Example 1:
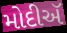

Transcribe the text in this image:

મોદીઍ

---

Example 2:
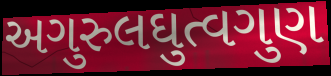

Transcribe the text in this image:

અગુરુલઘુત્વગુણ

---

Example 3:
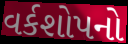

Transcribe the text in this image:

વર્કશોપનો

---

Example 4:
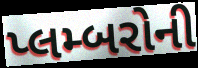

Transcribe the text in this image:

પ્લમ્બરોની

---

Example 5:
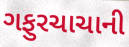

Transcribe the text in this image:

ગફુરચાચાની